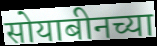
सोयाबीनच्या